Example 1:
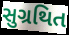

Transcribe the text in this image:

સુગ્રથિત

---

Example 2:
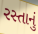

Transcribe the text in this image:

રસ્તાનું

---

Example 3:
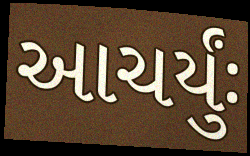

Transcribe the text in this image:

આચર્યુંઃ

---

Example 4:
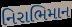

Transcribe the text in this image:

નિરાભિમાન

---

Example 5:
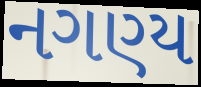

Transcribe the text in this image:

નગણ્ય